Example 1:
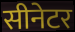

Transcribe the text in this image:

सीनेटर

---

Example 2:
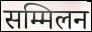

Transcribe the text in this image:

सम्मिलन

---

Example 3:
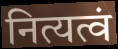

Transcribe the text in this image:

नित्यत्वं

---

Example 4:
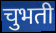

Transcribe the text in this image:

चुभती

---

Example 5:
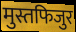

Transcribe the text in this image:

मुस्तफिजुर